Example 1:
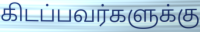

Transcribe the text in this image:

கிடப்பவர்களுக்கு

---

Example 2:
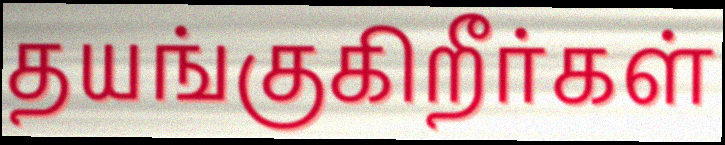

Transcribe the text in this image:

தயங்குகிறீர்கள்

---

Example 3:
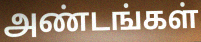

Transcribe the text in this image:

அண்டங்கள்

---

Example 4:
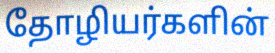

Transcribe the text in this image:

தோழியர்களின்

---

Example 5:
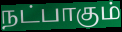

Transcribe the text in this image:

நட்பாகும்